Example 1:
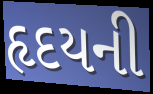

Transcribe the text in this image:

હૃદયની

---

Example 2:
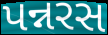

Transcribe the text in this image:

પન્નરસ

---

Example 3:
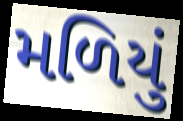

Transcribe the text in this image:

મળિયું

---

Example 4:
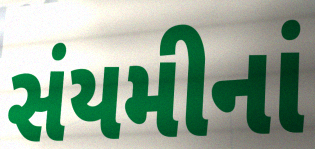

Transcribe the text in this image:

સંયમીનાં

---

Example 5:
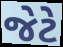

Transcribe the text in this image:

જેટે